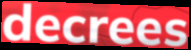
decrees